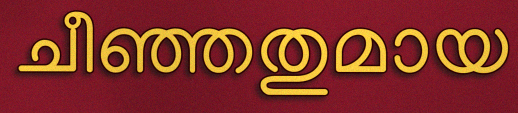
ചീഞ്ഞതുമായ